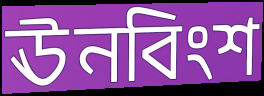
ঊনবিংশ